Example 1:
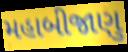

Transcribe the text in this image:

મહાબીજાણુ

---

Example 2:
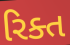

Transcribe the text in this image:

રિક્ત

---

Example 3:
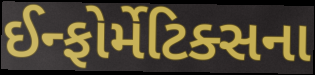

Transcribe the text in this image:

ઈન્ફોર્મેટિક્સના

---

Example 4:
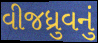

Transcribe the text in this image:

વીજધ્રુવનું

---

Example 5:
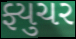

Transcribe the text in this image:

ફ્યુચર